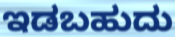
ಇಡಬಹುದು